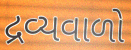
દ્રવ્યવાળો